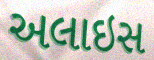
અલાઇસ